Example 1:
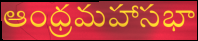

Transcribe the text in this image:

ఆంధ్రమహాసభా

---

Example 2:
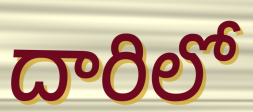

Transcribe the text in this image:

దారిలో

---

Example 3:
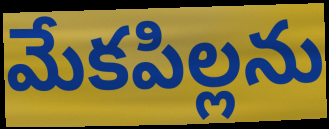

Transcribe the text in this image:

మేకపిల్లను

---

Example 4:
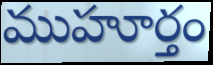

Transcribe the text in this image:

ముహూర్తం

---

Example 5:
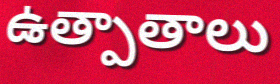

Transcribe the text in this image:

ఉత్పాతాలు